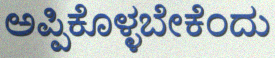
ಅಪ್ಪಿಕೊಳ್ಳಬೇಕೆಂದು